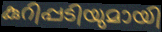
കുറിപ്പടിയുമായി